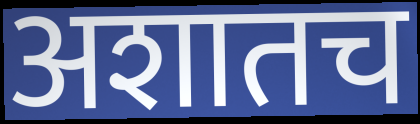
अशातच